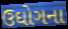
ઉઘોગના